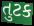
તુટક